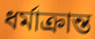
ধর্মাক্রান্ত